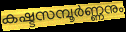
കഷ്ടസമ്പൂർണ്ണനും